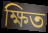
ক্ষিত